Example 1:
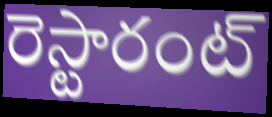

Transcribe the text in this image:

రెస్టారంట్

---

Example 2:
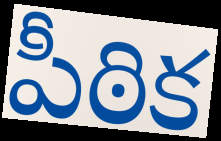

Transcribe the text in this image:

పీఠిక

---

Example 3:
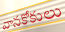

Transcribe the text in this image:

వానకోకులు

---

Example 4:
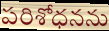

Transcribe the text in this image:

పరిశోధనను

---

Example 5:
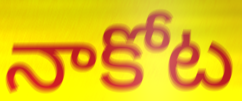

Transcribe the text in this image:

నాకోట